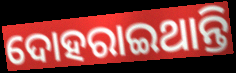
ଦୋହରାଇଥାନ୍ତି